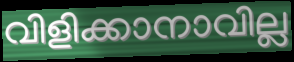
വിളിക്കാനാവില്ല